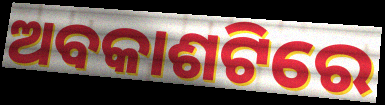
ଅବକାଶଟିରେ